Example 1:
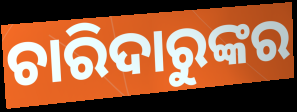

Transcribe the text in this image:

ଚାରିଦାରୁଙ୍କର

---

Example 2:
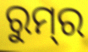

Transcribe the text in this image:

ରୁମ୍‍ର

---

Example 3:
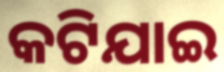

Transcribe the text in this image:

କଟିଯାଇ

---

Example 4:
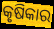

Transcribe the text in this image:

କୃଷିକାର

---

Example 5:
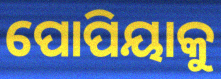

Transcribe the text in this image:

ପୋପିୟାକୁ